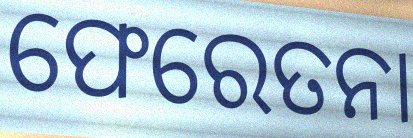
ଫେରେତନା